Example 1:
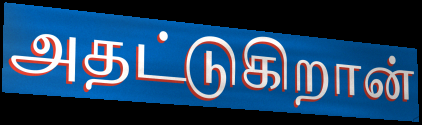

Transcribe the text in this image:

அதட்டுகிறான்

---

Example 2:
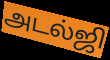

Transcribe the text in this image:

அடல்ஜி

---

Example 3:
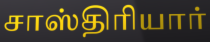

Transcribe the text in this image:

சாஸ்திரியார்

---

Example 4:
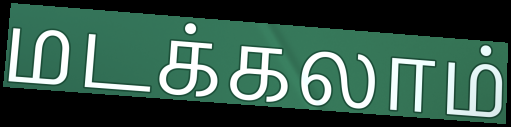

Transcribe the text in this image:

மடக்கலாம்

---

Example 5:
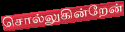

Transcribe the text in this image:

சொல்லுகின்றேன்